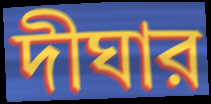
দীঘার